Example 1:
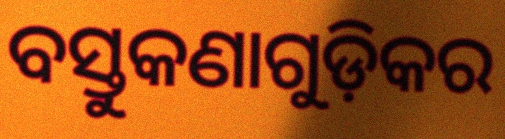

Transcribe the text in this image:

ବସ୍ତୁକଣାଗୁଡ଼ିକର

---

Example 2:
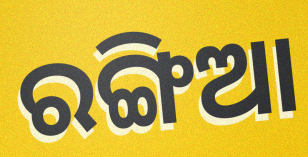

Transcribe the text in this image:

ରଙ୍ଗିଆ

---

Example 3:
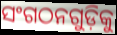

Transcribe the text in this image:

ସଂଗଠନଗୁଡ଼ିକୁ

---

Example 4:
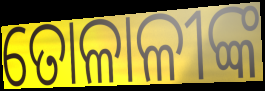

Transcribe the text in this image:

ତୋଳାଳୀଙ୍କ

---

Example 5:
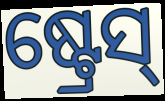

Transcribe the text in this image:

ଷ୍ଟ୍ରେସ୍